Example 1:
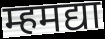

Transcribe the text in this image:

म्हमद्या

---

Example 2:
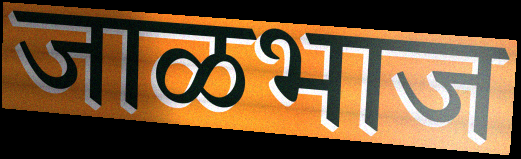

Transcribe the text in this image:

जाळभाज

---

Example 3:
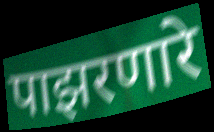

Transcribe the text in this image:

पाझरणारे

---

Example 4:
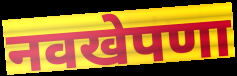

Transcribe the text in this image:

नवखेपणा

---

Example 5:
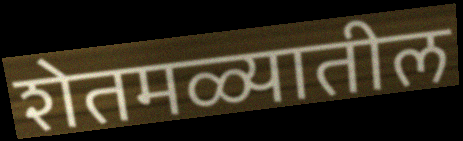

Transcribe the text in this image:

शेतमळ्यातील